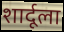
शार्दूला